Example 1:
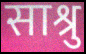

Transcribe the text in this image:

साश्रु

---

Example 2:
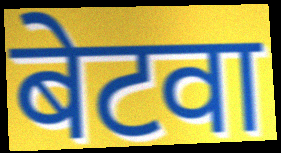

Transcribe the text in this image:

बेटवा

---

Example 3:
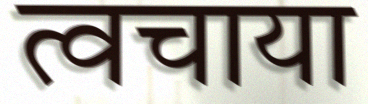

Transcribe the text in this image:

त्वचाया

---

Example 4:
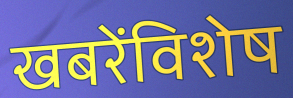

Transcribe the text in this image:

खबरेंविशेष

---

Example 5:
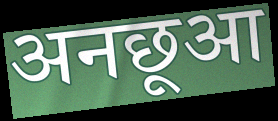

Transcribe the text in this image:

अनछूआ